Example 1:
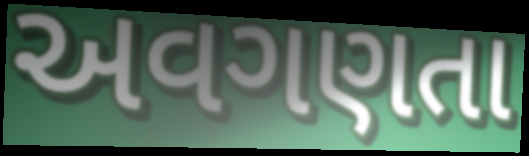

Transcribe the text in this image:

અવગણતા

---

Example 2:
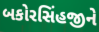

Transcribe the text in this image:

બકોરસિંહજીને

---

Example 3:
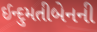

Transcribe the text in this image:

ઈન્દુમતીબેનની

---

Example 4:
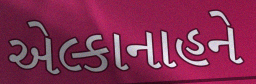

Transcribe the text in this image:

એલ્કાનાહને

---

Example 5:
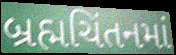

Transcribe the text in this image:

બ્રહ્મચિંતનમાં